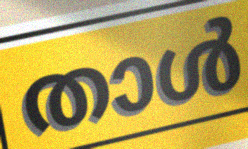
താൾ